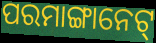
ପରମାଙ୍ଗାନେଟ୍